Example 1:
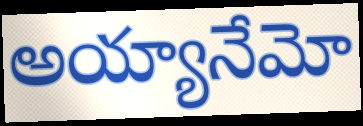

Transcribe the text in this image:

అయ్యానేమో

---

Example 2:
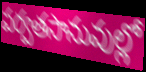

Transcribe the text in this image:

పర్వతసానువుల్లో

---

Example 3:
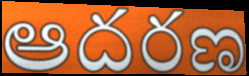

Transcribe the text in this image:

ఆదరణ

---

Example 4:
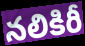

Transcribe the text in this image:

నలికిరీ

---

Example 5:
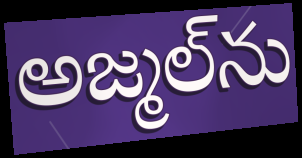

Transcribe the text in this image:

అజ్మల్‌ను